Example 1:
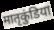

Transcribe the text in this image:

मातृकुंडिया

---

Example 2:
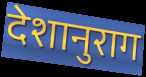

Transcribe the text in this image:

देशानुराग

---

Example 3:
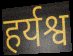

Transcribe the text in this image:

हर्यश्व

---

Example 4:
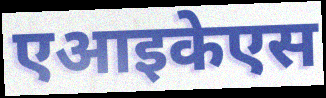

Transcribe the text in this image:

एआइकेएस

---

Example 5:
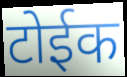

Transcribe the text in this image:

टोईक